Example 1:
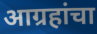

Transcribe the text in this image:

आग्रहांचा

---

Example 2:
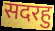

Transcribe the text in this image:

सदरहु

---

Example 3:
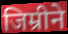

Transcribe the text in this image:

जिम्रीने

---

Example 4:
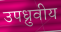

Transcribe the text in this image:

उपध्रुवीय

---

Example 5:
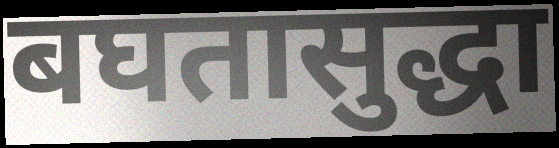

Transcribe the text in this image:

बघतासुद्धा